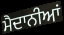
ਮੈਦਾਨੀਆਂ